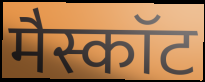
मैस्कॉट